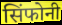
सिंफोनी